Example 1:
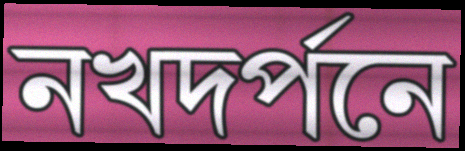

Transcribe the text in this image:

নখদর্পনে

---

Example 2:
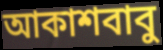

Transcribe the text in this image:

আকাশবাবু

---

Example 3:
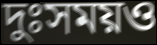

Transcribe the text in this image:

দুঃসময়ও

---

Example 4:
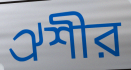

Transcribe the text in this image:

ঐশীর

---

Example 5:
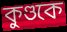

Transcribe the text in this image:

কুণ্ডকে